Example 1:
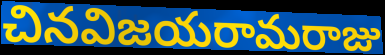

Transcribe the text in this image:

చినవిజయరామరాజు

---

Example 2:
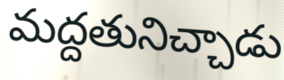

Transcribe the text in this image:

మద్దతునిచ్చాడు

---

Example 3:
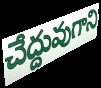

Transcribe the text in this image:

చేద్దువుగాని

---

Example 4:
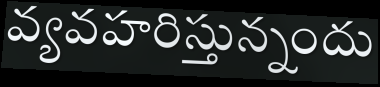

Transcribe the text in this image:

వ్యవహరిస్తున్నందు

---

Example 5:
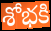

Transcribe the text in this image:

శోభకి